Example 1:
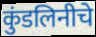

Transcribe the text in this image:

कुंडलिनीचे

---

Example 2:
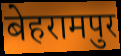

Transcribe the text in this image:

बेहरामपुर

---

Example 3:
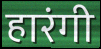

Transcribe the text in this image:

हारंगी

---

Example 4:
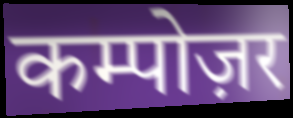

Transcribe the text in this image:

कम्पोज़र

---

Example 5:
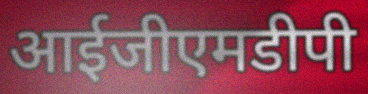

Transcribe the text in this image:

आईजीएमडीपी